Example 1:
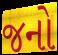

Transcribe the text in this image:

જનો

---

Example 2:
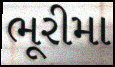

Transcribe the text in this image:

ભૂરીમા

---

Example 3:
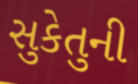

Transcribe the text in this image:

સુકેતુની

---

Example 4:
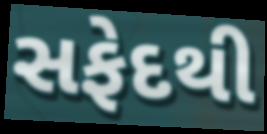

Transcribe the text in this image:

સફેદથી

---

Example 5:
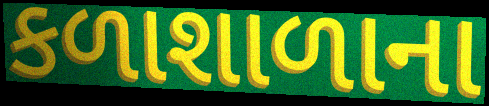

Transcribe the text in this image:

કળાશાળાના